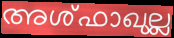
അശ്ഫാഖുല്ല